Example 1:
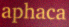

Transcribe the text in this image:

aphaca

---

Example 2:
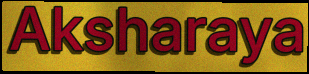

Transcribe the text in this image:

Aksharaya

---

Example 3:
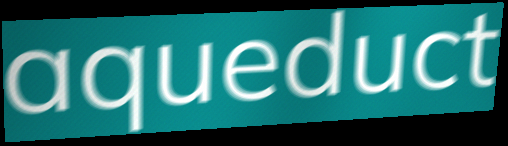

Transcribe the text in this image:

aqueduct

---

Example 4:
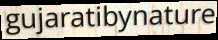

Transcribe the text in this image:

gujaratibynature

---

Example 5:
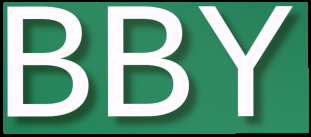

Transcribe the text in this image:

BBY